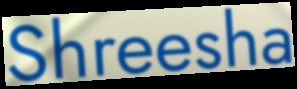
Shreesha